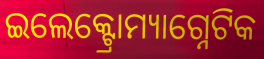
ଇଲେକ୍ଟ୍ରୋମ୍ୟାଗ୍ନେଟିକ